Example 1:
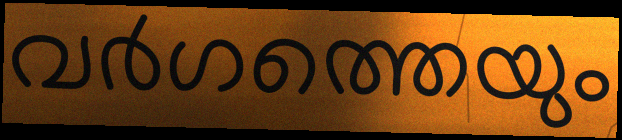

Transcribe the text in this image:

വർഗത്തെയും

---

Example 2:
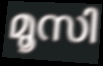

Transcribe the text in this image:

മൂസി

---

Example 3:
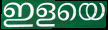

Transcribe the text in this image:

ഇളയെ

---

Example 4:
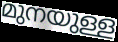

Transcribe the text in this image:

മുനയുള്ള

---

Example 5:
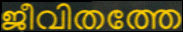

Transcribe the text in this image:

ജീവിതത്തേ